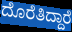
ದೊರೆತಿದ್ದಾರೆ